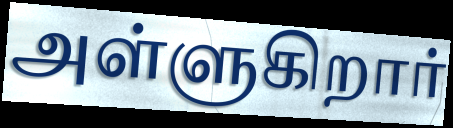
அள்ளுகிறார்